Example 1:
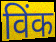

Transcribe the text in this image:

विंक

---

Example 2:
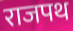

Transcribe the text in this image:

राजपथ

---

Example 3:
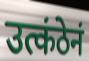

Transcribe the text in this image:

उत्कंठेनं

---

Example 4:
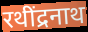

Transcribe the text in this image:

रथींद्रनाथ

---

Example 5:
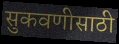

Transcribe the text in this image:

सुकवणीसाठी